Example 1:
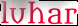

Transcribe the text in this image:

luhar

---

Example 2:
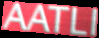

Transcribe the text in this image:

AATLI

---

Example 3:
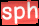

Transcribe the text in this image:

sph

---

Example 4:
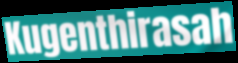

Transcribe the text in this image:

Kugenthirasah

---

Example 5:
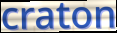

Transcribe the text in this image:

craton